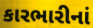
કારભારીનાં